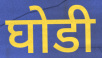
घोडी